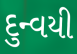
દુન્વયી